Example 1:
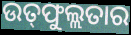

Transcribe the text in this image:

ଉତ୍‌ଫୁଲ୍ଲତାର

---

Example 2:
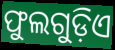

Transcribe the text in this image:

ଫୁଲଗୁଡ଼ିଏ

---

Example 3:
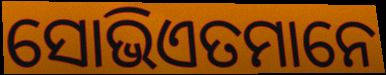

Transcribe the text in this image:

ସୋଭିଏତମାନେ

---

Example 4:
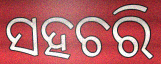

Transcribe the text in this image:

ସହଚରି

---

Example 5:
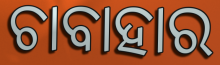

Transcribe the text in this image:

ଚାବାହାର